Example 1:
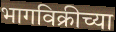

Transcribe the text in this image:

भागविक्रीच्या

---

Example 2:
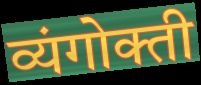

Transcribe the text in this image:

व्यंगोक्ती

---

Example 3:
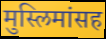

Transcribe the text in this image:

मुस्लिमांसह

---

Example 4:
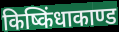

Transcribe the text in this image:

किष्किंधाकाण्ड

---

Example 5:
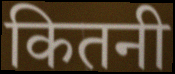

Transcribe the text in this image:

कितनी